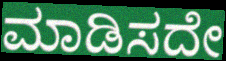
ಮಾಡಿಸದೇ